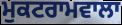
ਮੁਕਟਰਾਮਵਾਲਾ